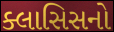
ક્લાસિસનો